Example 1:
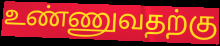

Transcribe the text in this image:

உண்ணுவதற்கு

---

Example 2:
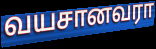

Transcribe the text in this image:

வயசானவரா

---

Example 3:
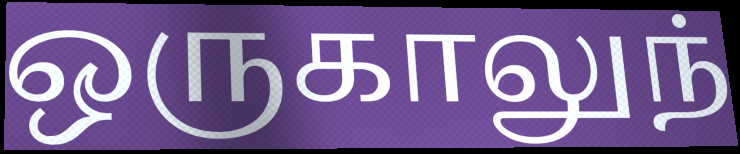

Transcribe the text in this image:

ஒருகாலுந்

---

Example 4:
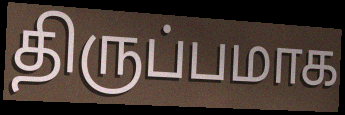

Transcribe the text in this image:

திருப்பமாக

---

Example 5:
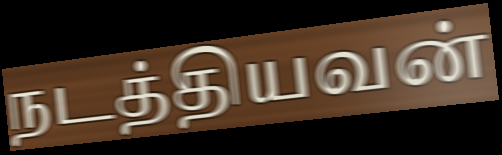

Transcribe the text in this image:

நடத்தியவன்